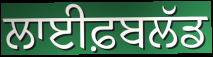
ਲਾਈਫ਼ਬਲੱਡ